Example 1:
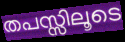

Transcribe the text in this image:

തപസ്സിലൂടെ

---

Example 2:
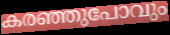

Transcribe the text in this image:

കരഞ്ഞുപോവും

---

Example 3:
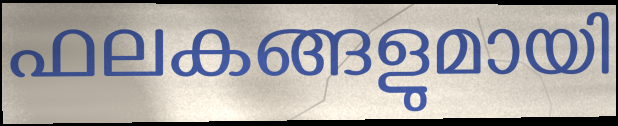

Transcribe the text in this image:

ഫലകങ്ങളുമായി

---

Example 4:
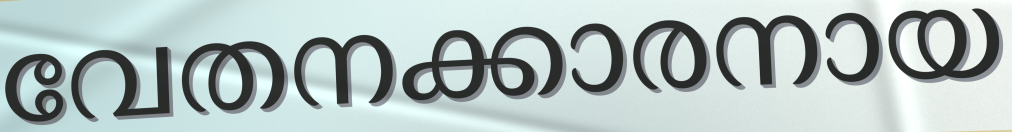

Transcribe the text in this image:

വേതനക്കാരനായ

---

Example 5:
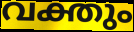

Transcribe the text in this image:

വക്തും